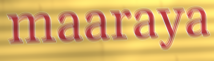
maaraya